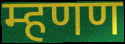
म्हणण